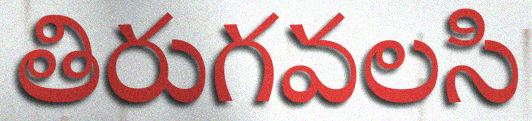
తిరుగవలసి